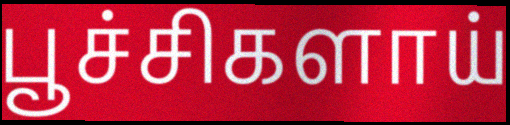
பூச்சிகளாய்